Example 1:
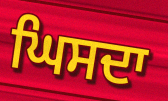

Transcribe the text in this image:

ਘਿਸਦਾ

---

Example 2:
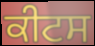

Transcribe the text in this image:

ਕੀਟਸ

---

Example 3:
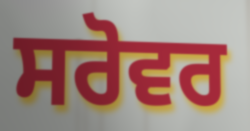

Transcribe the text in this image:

ਸਰੋਵਰ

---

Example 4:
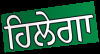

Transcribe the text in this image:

ਹਿਲੇਗਾ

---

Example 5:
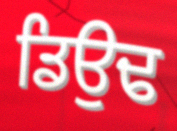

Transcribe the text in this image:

ਡਿਉਢ